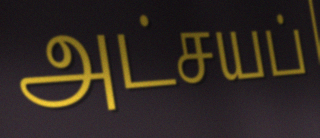
அட்சயப்